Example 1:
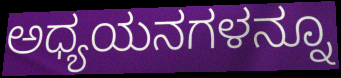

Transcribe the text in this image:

ಅಧ್ಯಯನಗಳನ್ನೂ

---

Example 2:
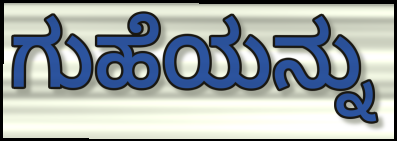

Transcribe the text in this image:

ಗುಹೆಯನ್ನು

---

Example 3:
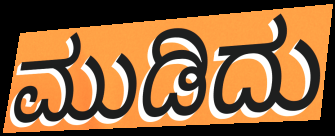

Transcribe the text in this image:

ಮುಡಿದು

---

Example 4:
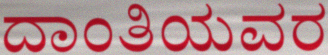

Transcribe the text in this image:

ದಾಂತಿಯವರ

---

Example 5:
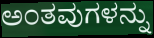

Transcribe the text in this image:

ಅಂತವುಗಳನ್ನು